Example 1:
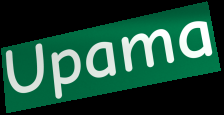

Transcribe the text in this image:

Upama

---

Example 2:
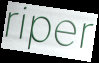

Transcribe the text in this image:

riper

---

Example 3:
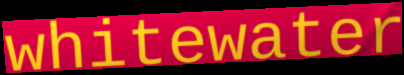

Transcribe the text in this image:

whitewater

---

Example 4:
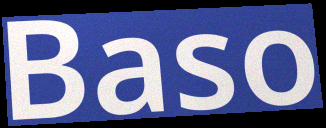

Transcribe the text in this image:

Baso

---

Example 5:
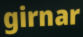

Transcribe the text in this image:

girnar